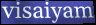
visaiyam